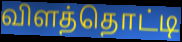
விளத்தொட்டி